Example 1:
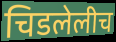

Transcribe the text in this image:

चिडलेलीच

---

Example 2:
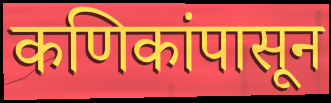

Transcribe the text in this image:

कणिकांपासून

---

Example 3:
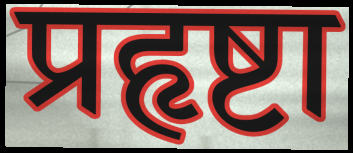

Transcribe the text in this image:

प्रहृष्टा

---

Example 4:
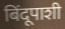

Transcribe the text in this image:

बिंदूपाशी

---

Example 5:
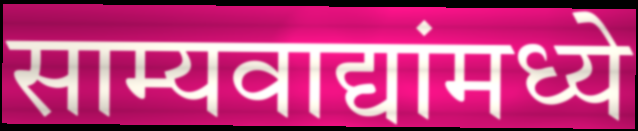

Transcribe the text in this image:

साम्यवाद्यांमध्ये